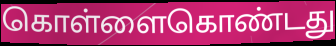
கொள்ளைகொண்டது